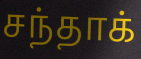
சந்தாக்